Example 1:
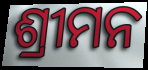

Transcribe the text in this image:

ଶ୍ରୀମନ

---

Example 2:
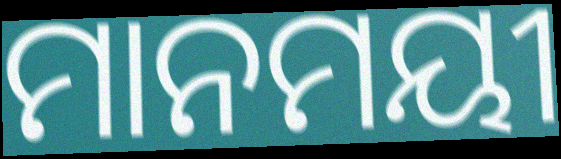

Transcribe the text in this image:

ମାନମୟୀ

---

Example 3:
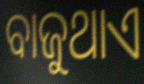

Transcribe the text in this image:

ବାଜୁଥାଏ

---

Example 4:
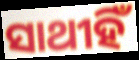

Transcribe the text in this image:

ସାଥୀହିଁ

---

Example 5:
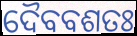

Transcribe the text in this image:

ଦୈବବଶତଃ